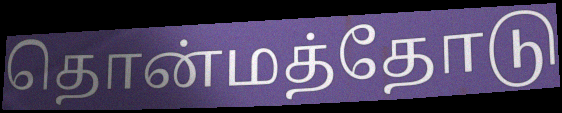
தொன்மத்தோடு